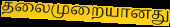
தலைமுறையானது